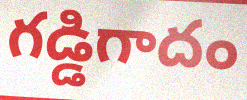
గడ్డిగాదం